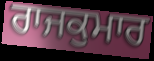
ਰਾਜਕੁਮਾਰ